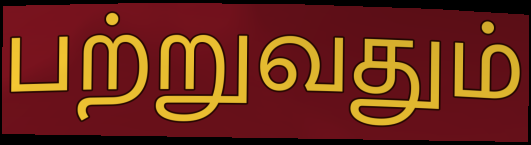
பற்றுவதும்